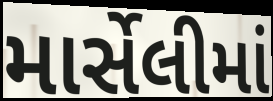
માર્સેલીમાં